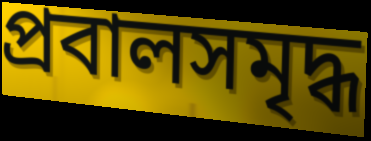
প্রবালসমৃদ্ধ